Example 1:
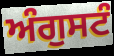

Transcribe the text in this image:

ਅੰਗੁਸਟੰ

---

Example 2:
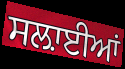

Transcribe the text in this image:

ਸਲ਼ਾਈਆਂ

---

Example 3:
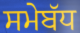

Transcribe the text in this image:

ਸਮੇਬੱਧ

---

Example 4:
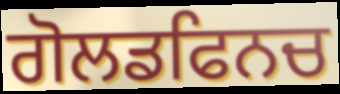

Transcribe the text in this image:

ਗੋਲਡਫਿਨਚ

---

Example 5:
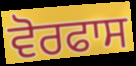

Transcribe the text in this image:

ਵੋਰਫਾਸ